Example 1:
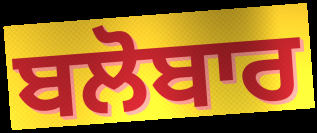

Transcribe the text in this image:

ਬਲੋਬਾਰ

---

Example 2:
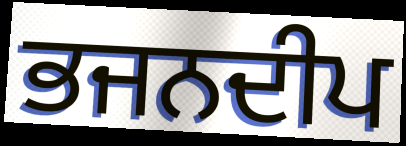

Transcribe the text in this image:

ਭਜਨਦੀਪ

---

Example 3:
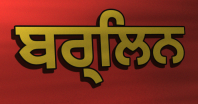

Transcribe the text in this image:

ਬਰ੍ਲਿਨ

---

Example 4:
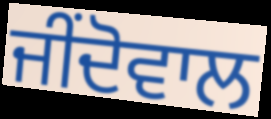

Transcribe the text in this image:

ਜੀਂਦੋਵਾਲ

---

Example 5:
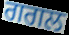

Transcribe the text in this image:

ਗਗਲ